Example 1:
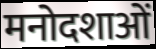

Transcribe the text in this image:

मनोदशाओं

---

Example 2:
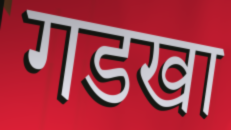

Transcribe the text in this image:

गडखा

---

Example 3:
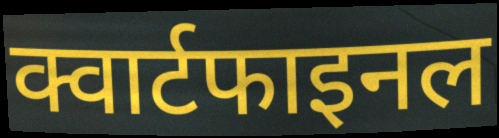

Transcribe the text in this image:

क्वार्टफाइनल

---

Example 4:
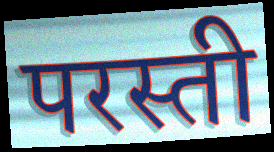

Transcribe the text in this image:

परस्ती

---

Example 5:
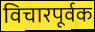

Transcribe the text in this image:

विचारपूर्वक